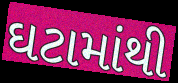
ઘટામાંથી